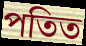
পতিত